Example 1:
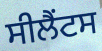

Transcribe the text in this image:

ਸੀਲੈਂਟਸ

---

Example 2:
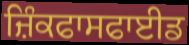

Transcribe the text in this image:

ਜ਼ਿੰਕਫਾਸਫਾਈਡ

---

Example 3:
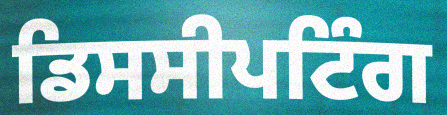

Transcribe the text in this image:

ਡਿਸਸੀਪਟਿੰਗ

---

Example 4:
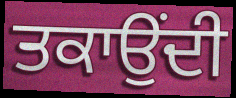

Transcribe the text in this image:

ਤਕਾਉਂਦੀ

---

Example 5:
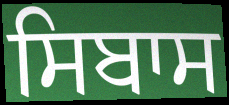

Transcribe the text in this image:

ਸਿਬਾਸ